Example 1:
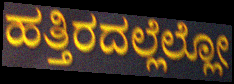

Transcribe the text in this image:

ಹತ್ತಿರದಲ್ಲೆಲ್ಲೋ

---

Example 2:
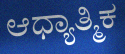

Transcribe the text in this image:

ಆಧ್ಯಾತ್ಮಿಕ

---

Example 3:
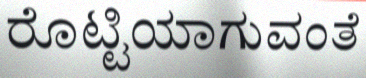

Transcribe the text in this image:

ರೊಟ್ಟಿಯಾಗುವಂತೆ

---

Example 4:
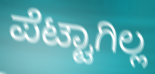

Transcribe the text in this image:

ಪೆಟ್ಟಾಗಿಲ್ಲ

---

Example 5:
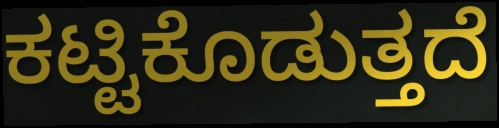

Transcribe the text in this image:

ಕಟ್ಟಿಕೊಡುತ್ತದೆ